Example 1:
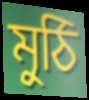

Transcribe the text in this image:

মুঠি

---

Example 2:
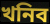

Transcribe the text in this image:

খনিব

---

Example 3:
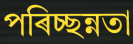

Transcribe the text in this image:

পৰিচ্ছন্নতা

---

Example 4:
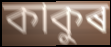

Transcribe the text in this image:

কাকুৰ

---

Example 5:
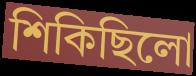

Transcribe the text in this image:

শিকিছিলো